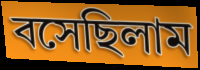
বসেছিলাম